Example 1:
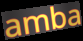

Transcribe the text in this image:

amba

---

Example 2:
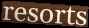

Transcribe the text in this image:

resorts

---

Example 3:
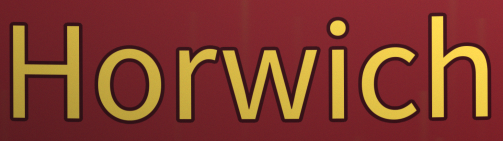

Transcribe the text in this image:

Horwich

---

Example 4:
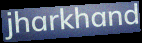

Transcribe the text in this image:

jharkhand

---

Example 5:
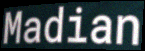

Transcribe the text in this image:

Madian